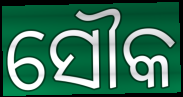
ସୌକ